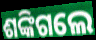
ଶଙ୍କିଗଲେ